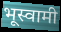
भूस्‍वामी